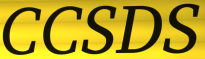
CCSDS